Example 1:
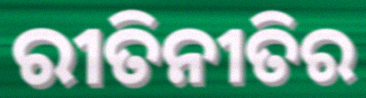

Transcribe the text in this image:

ରୀତିନୀତିର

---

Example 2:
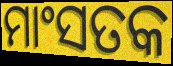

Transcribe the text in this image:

ମାଂସତକ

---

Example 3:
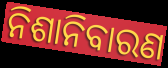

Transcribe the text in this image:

ନିଶାନିବାରଣ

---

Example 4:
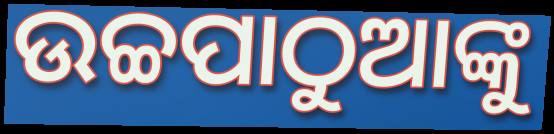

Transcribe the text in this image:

ଉଚ୍ଚପାଠୁଆଙ୍କୁ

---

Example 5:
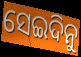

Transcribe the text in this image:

ସେଇଦିନୁ